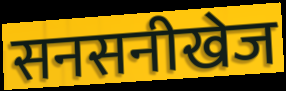
सनसनीखेज